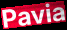
Pavia